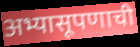
अभ्यासूपणाची